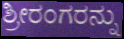
ಶ್ರೀರಂಗರನ್ನು